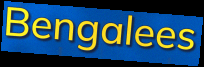
Bengalees